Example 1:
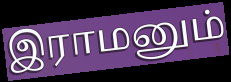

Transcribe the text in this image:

இராமனும்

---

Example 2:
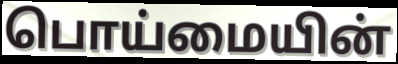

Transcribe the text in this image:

பொய்மையின்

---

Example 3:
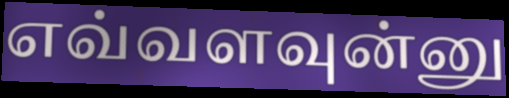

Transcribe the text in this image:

எவ்வளவுன்னு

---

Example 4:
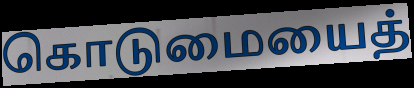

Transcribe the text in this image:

கொடுமையைத்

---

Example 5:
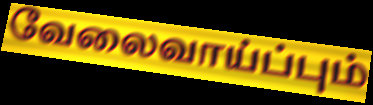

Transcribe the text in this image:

வேலைவாய்ப்பும்